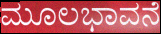
ಮೂಲಭಾವನೆ